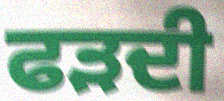
ਫੜਦੀ